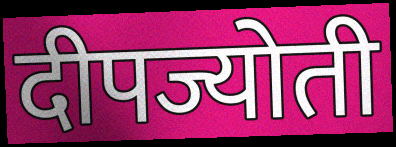
दीपज्योती